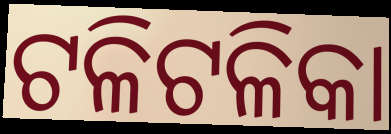
ଟଳିଟଳିକା